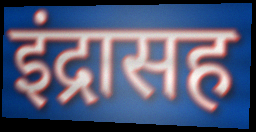
इंद्रासह